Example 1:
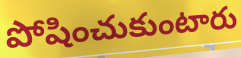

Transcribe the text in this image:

పోషించుకుంటారు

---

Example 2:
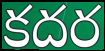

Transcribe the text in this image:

కదర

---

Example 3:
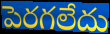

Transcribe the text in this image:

పెరగలేదు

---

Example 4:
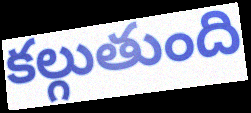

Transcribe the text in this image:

కల్గుతుంది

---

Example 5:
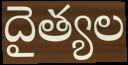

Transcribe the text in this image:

దైత్యల